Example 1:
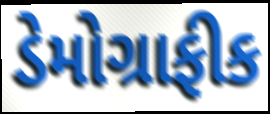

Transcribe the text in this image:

ડેમોગ્રાફીક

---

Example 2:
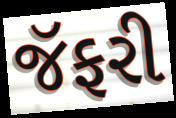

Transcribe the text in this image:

જૅફરી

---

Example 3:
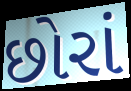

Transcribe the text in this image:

છોરાં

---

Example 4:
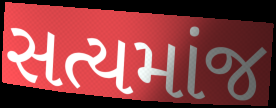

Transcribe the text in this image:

સત્યમાંજ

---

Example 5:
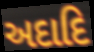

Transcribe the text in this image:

અદાદિ